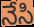
నేసి